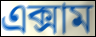
এক্সাম